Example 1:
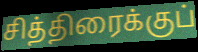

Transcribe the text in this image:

சித்திரைக்குப்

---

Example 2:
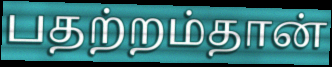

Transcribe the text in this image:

பதற்றம்தான்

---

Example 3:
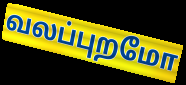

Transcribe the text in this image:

வலப்புறமோ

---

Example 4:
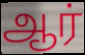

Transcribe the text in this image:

ஆர்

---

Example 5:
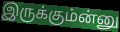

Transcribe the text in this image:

இருக்கும்ன்னு